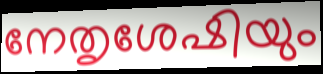
നേതൃശേഷിയും